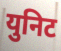
युनिट